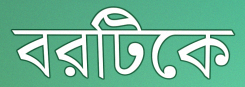
বরটিকে